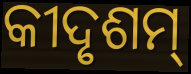
କୀଦୃଶମ୍